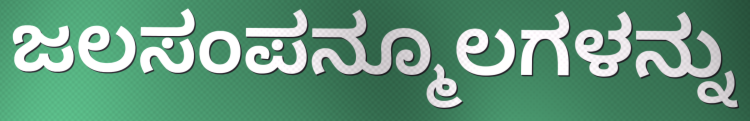
ಜಲಸಂಪನ್ಮೂಲಗಳನ್ನು